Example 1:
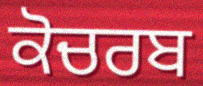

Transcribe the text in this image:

ਕੋਚਰਬ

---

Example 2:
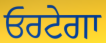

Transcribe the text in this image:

ਓਰਟੇਗਾ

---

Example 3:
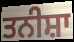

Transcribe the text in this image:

ਤਨੀਸ਼ਾ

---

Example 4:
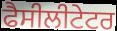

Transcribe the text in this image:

ਫੈਸੀਲੀਟੇਟਰ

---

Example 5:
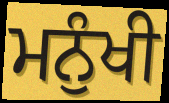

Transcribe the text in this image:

ਮਨੁੰਖੀ